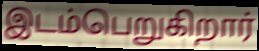
இடம்பெறுகிறார்